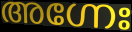
അഗ്നേഃ